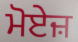
ਮੋਏਜ਼